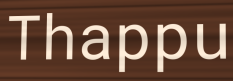
Thappu